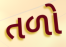
તળો